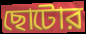
ছোটোর